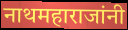
नाथमहाराजांनी